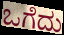
ಒಗೆದು